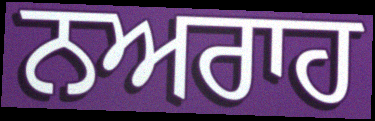
ਨਅਰਾਹ